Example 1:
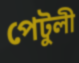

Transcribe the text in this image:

পেটুলী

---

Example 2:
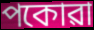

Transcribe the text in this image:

পকোৱা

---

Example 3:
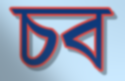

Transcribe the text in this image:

চব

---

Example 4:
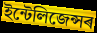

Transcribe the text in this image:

ইন্টেলিজেন্সৰ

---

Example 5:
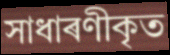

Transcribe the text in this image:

সাধাৰণীকৃত